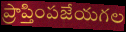
ప్రాప్తింపజేయగల